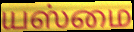
யஸ்மை